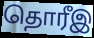
தொரீஇ